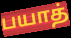
பயாத்